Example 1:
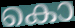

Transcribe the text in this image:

കൊ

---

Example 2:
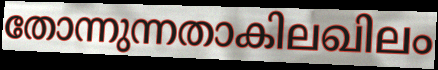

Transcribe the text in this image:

തോന്നുന്നതാകിലഖിലം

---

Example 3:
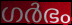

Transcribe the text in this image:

ഗർഭം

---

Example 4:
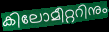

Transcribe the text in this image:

കിലോമീറ്ററിനും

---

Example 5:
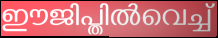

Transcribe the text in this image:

ഈജിപ്തിൽവെച്ച്